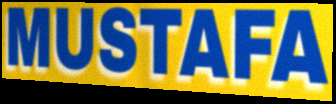
MUSTAFA